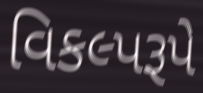
વિકલ્પરૂપે